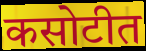
कसोटीत